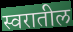
स्वरातील